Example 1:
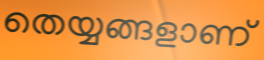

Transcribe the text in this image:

തെയ്യങ്ങളാണ്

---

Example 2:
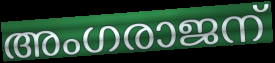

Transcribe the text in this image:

അംഗരാജന്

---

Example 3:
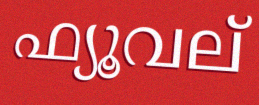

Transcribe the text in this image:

ഫ്യൂവല്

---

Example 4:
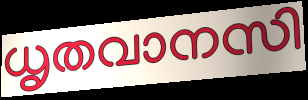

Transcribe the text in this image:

ധൃതവാനസി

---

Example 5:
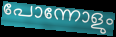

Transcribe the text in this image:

പോന്നോളും